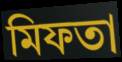
মিফতা